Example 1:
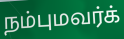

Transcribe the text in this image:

நம்புமவர்க்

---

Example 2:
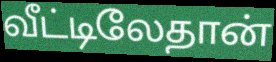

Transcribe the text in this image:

வீட்டிலேதான்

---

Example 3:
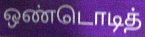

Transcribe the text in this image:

ஒண்டொடித்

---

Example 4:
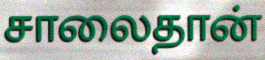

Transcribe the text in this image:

சாலைதான்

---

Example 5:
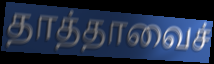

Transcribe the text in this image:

தாத்தாவைச்